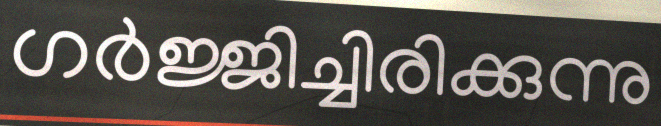
ഗർജ്ജിച്ചിരിക്കുന്നു